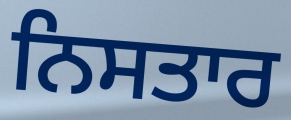
ਨਿਸਤਾਰ